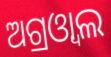
ଅଗ୍ରଓ୍ୱାଲ